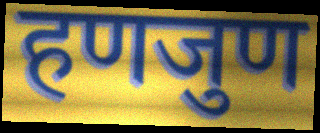
हणजुण